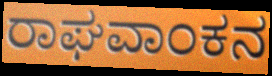
ರಾಘವಾಂಕನ